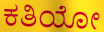
ಕತಿಯೋ